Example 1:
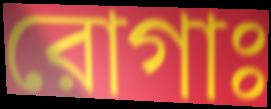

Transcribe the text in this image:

রোগাঃ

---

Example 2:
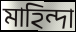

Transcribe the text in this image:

মাহিন্দা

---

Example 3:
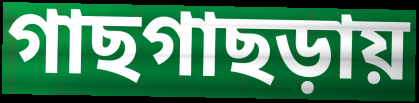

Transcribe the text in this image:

গাছগাছড়ায়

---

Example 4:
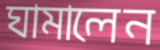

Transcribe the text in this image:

ঘামালেন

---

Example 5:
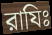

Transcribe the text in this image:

রাযিঃ